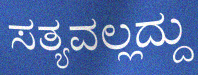
ಸತ್ಯವಲ್ಲದ್ದು